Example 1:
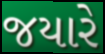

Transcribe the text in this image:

જયારે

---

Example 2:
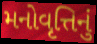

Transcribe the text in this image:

મનોવૃત્તિનું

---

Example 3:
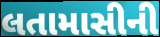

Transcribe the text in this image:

લતામાસીની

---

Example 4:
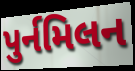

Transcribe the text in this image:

પુર્નમિલન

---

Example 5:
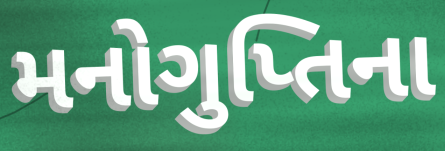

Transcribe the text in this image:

મનોગુપ્તિના